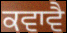
ਕਵਾਵੈ